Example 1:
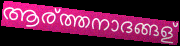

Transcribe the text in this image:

ആര്ത്തനാദങ്ങള്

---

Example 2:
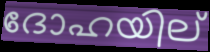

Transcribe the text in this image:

ദോഹയില്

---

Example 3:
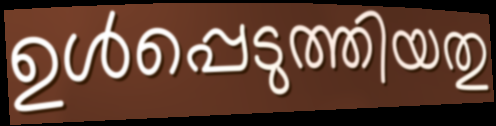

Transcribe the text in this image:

ഉൾപ്പെടുത്തിയതു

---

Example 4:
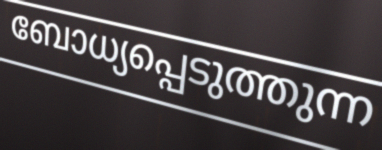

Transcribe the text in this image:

ബോധ്യപ്പെടുത്തുന്ന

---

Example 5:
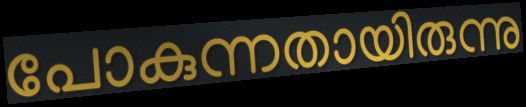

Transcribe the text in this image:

പോകുന്നതായിരുന്നു